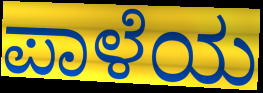
ಪಾಳೆಯ